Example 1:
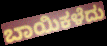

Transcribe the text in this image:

ಬಾಯಿಕಳೆದು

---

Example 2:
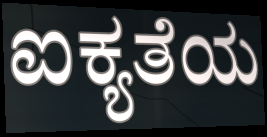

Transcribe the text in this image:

ಐಕ್ಯತೆಯ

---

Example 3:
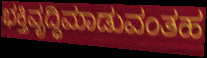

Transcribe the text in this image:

ಭಕ್ತಿವೃದ್ಧಿಮಾಡುವಂತಹ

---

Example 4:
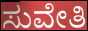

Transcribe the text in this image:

ಸುವೇತಿ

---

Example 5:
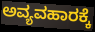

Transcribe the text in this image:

ಅವ್ಯವಹಾರಕ್ಕೆ